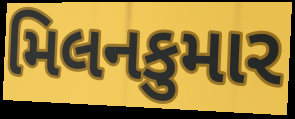
મિલનકુમાર